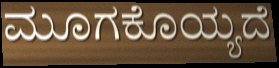
ಮೂಗಕೊಯ್ಯದೆ